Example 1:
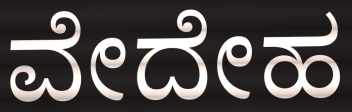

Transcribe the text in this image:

ವೇದೇಹ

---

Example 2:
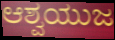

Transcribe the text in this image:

ಆಶ್ವಯುಜ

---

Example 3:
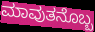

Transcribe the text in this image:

ಮಾವುತನೊಬ್ಬ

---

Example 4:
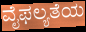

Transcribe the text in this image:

ವೈಫಲ್ಯತೆಯ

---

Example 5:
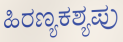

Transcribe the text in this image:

ಹಿರಣ್ಯಕಶ್ಯಪು